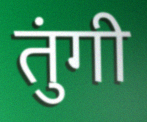
तुंगी